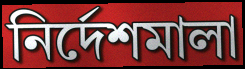
নির্দেশমালা